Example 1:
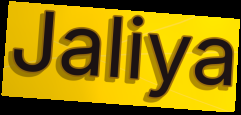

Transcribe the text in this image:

Jaliya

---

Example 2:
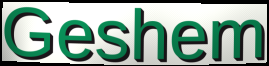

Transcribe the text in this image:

Geshem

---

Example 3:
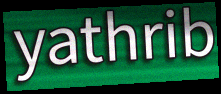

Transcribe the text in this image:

yathrib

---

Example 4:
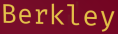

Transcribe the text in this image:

Berkley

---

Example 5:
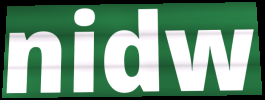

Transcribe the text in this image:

nidw